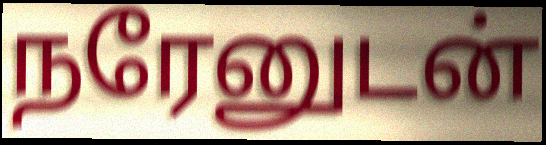
நரேனுடன்